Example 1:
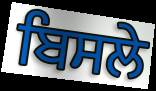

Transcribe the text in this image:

ਬਿਸਲੇ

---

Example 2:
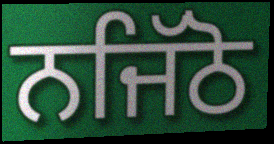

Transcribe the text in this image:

ਨਜਿੱਠੋ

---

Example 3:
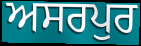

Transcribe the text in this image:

ਅਸਰਪੁਰ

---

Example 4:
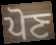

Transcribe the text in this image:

ਪੋਣ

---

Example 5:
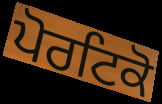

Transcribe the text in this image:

ਪੋਰਟਿਕੋ